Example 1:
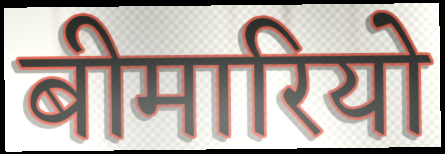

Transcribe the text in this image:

बीमारियो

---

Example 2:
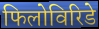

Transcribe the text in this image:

फिलोविरिडे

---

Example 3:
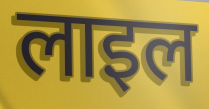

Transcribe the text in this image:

लाइल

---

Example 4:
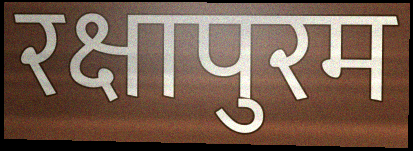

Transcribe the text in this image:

रक्षापुरम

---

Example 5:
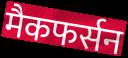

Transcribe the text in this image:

मैकफर्सन